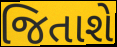
જિતાશે